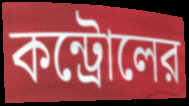
কন্ট্রোলের